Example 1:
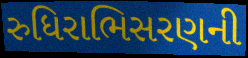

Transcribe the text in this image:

રુધિરાભિસરણની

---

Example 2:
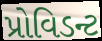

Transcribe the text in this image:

પ્રોવિડન્ટ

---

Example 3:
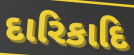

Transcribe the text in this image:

દારિકાદિ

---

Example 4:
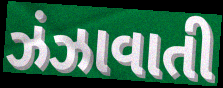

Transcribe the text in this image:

ઝંઝાવાતી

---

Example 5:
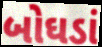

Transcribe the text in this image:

બોઘડાં